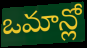
ఒమాన్లో